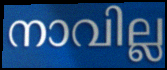
നാവില്ല